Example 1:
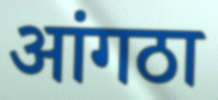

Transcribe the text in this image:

आंगठा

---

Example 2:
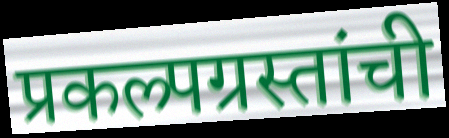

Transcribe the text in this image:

प्रकल्पग्रस्तांची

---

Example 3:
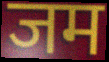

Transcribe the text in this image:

जम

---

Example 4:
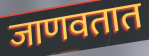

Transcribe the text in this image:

जाणवतात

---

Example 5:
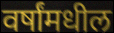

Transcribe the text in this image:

वर्षांमधील